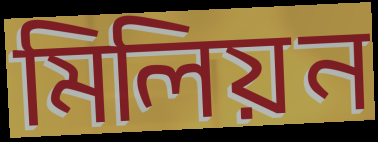
মিলিয়ন